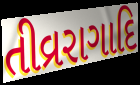
તીવ્રરાગાદિ